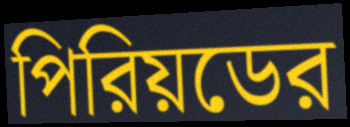
পিরিয়ডের